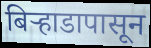
बिऱ्हाडापासून